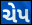
ચેપ